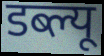
डब्ल्यू